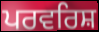
ਪਰਵਰਿਸ਼